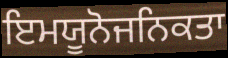
ਇਮਯੂਨੋਜਨਿਕਤਾ